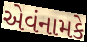
એવંનામકે